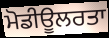
ਮੋਡੀਊਲਰਤਾ